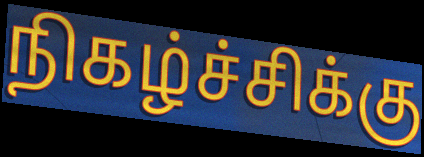
நிகழ்ச்சிக்கு